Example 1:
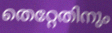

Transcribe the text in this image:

തെറ്റേതിനും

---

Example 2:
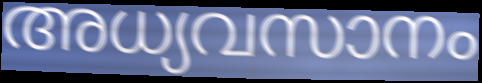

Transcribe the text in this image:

അധ്യവസാനം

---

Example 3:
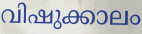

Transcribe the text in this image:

വിഷുക്കാലം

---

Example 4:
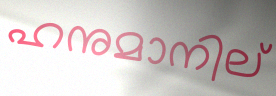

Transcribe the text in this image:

ഹനുമാനില്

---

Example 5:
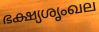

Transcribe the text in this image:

ഭക്ഷ്യശൃംഖല